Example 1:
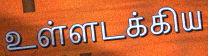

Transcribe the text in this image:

உள்ளடக்கிய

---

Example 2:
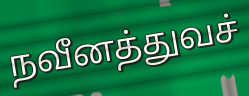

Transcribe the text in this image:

நவீனத்துவச்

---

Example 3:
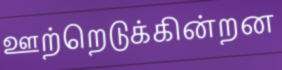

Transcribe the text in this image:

ஊற்றெடுக்கின்றன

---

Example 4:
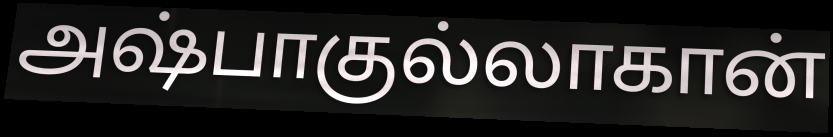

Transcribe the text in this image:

அஷ்பாகுல்லாகான்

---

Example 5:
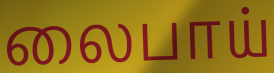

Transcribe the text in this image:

லைபாய்